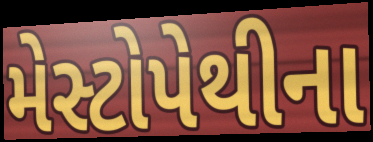
મેસ્ટોપેથીના